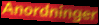
Anordninger